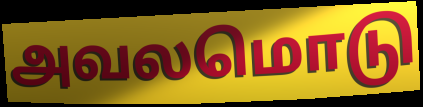
அவலமொடு